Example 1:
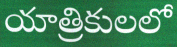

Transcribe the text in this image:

యాత్రికులలో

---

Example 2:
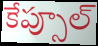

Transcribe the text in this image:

కేప్సూల్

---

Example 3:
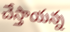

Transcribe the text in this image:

చేస్తాయన్న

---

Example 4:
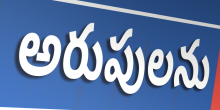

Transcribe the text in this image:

అరుపులను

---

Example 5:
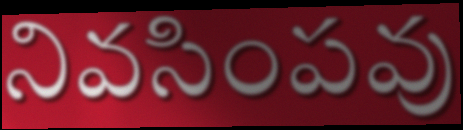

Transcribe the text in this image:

నివసింపవు